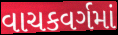
વાચકવર્ગમાં